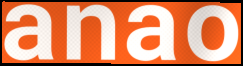
anao